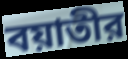
বয়াতীর